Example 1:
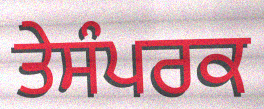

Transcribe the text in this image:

ਤੇਸੰਪਰਕ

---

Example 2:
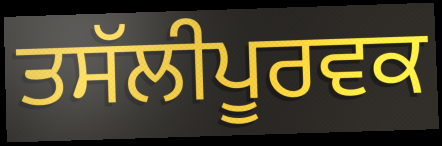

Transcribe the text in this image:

ਤਸੱਲੀਪੂਰਵਕ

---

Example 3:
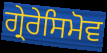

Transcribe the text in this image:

ਗ੍ਰੇਰੇਸਿਮੋਵ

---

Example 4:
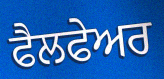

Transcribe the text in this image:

ਫੈਲਫੇਅਰ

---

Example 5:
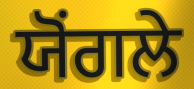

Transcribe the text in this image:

ਯੋਂਗਲੇ